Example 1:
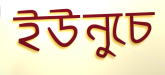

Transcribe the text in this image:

ইউনুচে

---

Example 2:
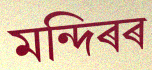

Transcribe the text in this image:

মন্দিৰৰ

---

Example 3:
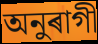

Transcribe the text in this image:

অনুৰাগী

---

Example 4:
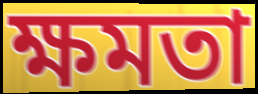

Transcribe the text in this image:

ক্ষমতা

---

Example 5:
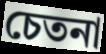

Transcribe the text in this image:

চেতনা